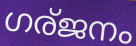
ഗര്ജനം